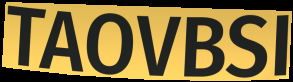
TAOVBSI